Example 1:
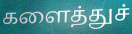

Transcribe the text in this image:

களைத்துச்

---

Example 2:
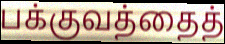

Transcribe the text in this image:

பக்குவத்தைத்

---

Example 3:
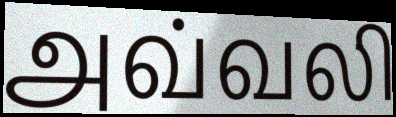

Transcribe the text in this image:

அவ்வலி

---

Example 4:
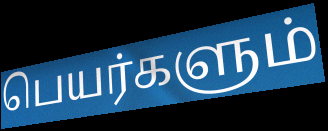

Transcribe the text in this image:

பெயர்களும்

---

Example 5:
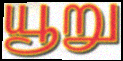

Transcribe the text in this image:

யூறு